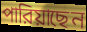
পারিয়াছেন